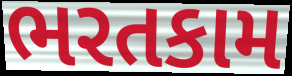
ભરતકામ